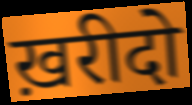
ख़रीदो